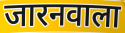
जारनवाला